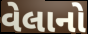
વેલાનો